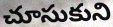
చూసుకుని